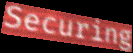
Securing